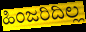
ಹಿಂಜರಿದಿಲ್ಲ